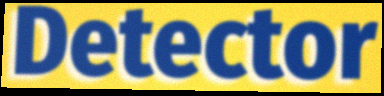
Detector